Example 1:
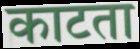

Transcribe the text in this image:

काटता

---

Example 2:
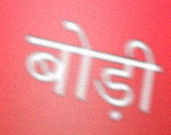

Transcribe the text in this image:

बोड़ी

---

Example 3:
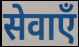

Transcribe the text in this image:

सेवाएँ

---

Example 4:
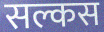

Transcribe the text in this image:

सल्कस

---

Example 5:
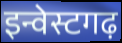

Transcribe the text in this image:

इन्वेस्टगढ़